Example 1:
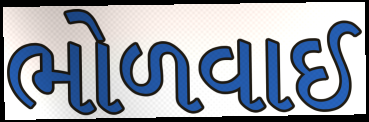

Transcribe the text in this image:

ભોળવાઈ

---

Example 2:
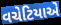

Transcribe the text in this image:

વચેટિયાએ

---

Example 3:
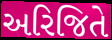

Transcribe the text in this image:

અરિજિતે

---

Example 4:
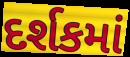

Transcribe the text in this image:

દર્શકમાં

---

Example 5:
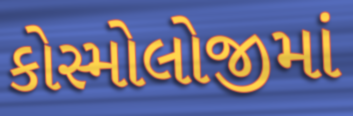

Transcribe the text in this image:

કોસ્મોલોજીમાં